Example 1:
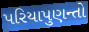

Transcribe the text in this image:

પરિયાપુણન્તો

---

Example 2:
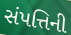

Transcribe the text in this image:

સંપત્તિની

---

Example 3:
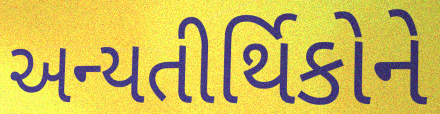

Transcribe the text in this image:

અન્યતીર્થિકોને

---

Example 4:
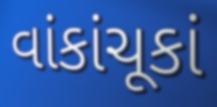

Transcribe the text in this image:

વાંકાંચૂકાં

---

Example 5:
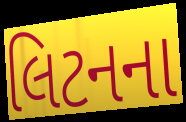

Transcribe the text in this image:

લિટનના